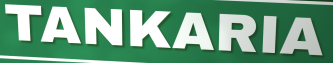
TANKARIA